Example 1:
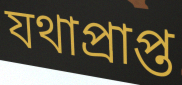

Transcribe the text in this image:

যথাপ্রাপ্ত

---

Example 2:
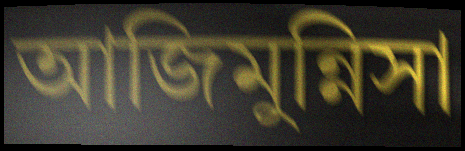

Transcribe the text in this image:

আজিমুন্নিসা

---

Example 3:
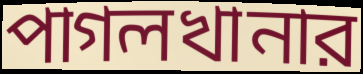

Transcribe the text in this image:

পাগলখানার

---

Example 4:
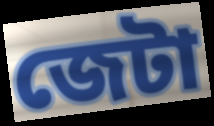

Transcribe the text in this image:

জেটা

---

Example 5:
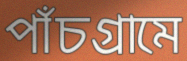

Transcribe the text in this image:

পাঁচগ্রামে